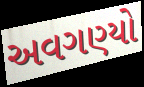
અવગણ્યો